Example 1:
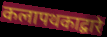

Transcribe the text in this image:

कलापथकाद्वारे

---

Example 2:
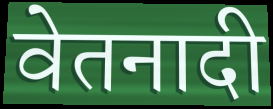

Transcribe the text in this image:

वेतनादी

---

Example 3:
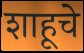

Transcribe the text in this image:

शाहूचे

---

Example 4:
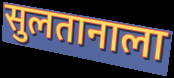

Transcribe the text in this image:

सुलतानाला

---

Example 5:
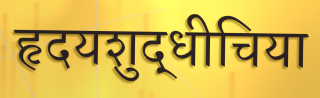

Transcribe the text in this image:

हृदयशुद्धीचिया